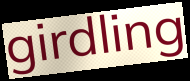
girdling